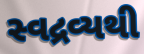
સ્વદ્રવ્યથી